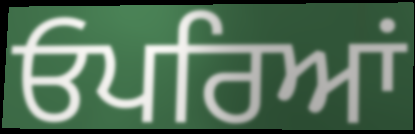
ਓਪਰਿਆਂ